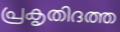
പ്രകൃതിദത്ത